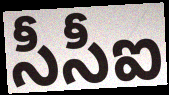
సీసీఐ